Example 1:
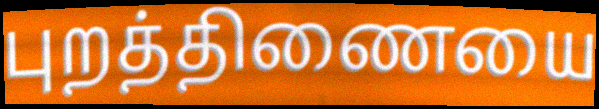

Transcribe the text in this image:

புறத்திணையை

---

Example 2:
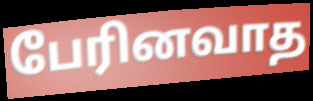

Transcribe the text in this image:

பேரினவாத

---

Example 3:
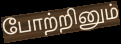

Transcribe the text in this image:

போற்றினும்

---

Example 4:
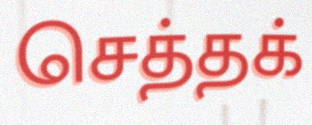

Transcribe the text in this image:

செத்தக்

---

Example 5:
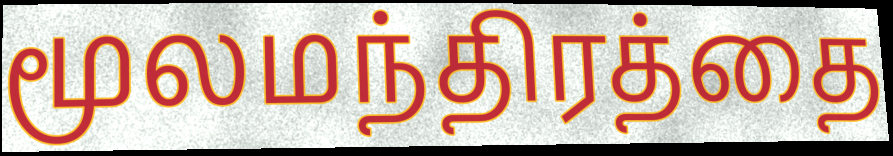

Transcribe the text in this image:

மூலமந்திரத்தை